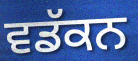
ਵਡੱਕਨ